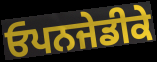
ਓਪਨਜੇਡੀਕੇ